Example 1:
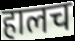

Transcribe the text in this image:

हालच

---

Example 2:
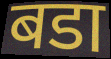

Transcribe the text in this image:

बडा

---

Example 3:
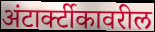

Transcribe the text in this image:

अंटार्क्टीकावरील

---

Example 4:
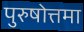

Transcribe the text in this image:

पुरुषोत्तमा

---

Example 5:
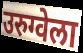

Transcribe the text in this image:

उरुग्वेला